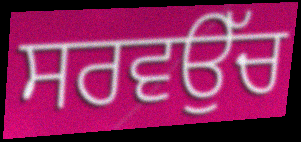
ਸਰਵਉੱਚ